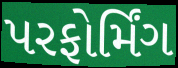
પરફોર્મિંગ